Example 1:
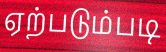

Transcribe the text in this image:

ஏற்படும்படி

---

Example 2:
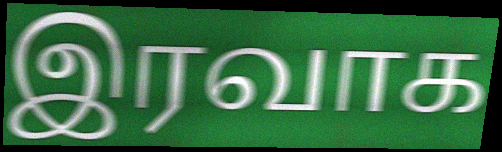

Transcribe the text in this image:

இரவாக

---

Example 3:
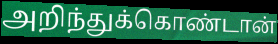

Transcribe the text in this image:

அறிந்துக்கொண்டான்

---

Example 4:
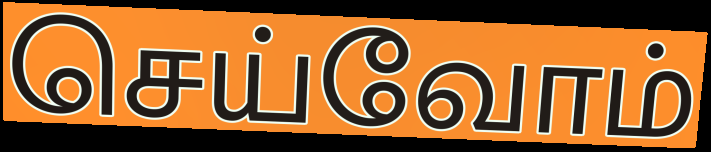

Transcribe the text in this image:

செய்வோம்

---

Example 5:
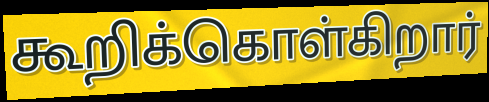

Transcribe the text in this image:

கூறிக்கொள்கிறார்